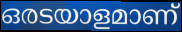
ഒരടയാളമാണ്